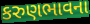
કરુણભાવના